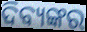
ଦିବ୍ୟଙ୍କର